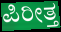
ಪಿರೀತ್ತ